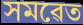
সমৱেত